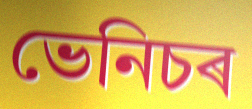
ভেনিচৰ